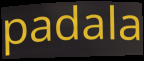
padala